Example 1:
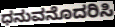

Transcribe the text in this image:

ಧನುವನೊದರಿಸಿ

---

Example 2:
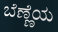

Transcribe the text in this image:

ಬೆಣ್ಣೆಯ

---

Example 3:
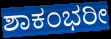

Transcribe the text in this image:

ಶಾಕಂಭರೀ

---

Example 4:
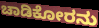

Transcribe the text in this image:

ಚಾಡಿಕೋರನು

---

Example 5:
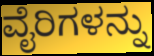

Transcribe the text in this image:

ವೈರಿಗಳನ್ನು